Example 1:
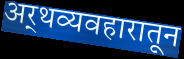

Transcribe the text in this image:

अर्थव्यवहारातून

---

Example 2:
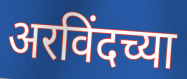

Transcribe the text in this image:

अरविंदच्या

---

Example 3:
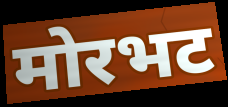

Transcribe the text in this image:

मोरभट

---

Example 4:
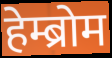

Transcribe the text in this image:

हेम्ब्रोम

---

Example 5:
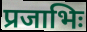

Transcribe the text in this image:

प्रजाभिः